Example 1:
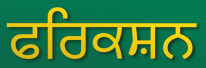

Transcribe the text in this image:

ਫਰਿਕਸ਼ਨ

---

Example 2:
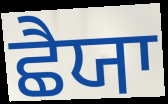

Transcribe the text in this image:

ਛੈਯਾ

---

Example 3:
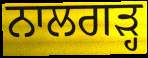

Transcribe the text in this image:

ਨਾਲਗੜ੍ਹ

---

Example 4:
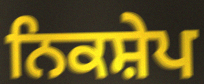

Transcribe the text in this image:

ਨਿਕਸ਼ੇਪ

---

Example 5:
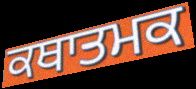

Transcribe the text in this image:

ਕਥਾਤਮਕ